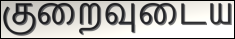
குறைவுடைய